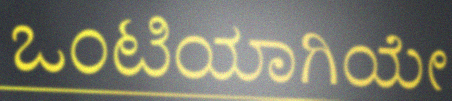
ಒಂಟಿಯಾಗಿಯೇ